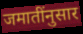
जमातींनुसार